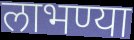
लाभण्या